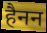
हैनन